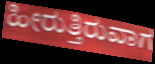
ಹೀರುತ್ತಿರುವಾಗ